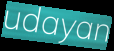
udayan